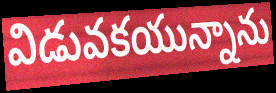
విడువకయున్నాను